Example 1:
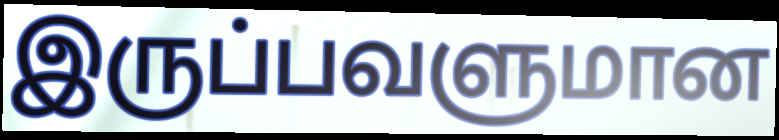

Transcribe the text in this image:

இருப்பவளுமான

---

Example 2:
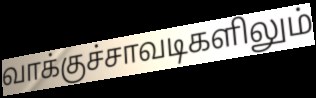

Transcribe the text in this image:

வாக்குச்சாவடிகளிலும்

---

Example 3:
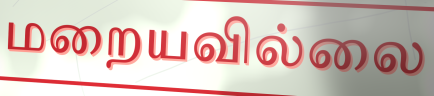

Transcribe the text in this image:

மறையவில்லை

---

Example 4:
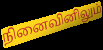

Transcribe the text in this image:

நினைவினிலும்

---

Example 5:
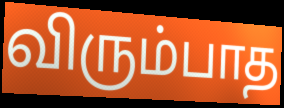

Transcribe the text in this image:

விரும்பாத